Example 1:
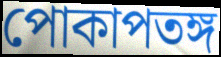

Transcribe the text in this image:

পোকাপতঙ্গ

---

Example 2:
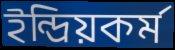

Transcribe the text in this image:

ইন্দ্রিয়কর্ম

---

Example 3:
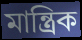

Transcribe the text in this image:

মান্ত্রিক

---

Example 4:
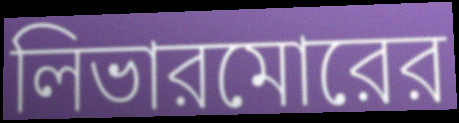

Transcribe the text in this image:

লিভারমোরের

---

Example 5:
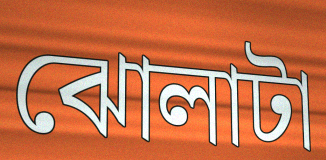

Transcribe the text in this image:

ঝোলাটা